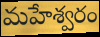
మహేశ్వరం